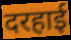
दरहाई